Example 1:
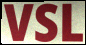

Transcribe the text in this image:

VSL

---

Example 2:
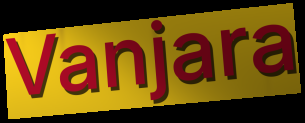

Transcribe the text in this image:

Vanjara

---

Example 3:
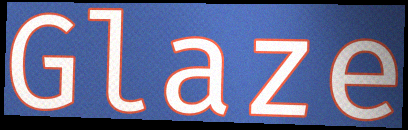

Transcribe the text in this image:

Glaze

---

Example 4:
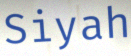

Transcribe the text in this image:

Siyah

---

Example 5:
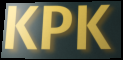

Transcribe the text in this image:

KPK